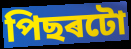
পিছৰটো